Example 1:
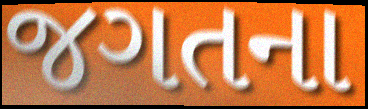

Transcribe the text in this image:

જગતના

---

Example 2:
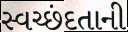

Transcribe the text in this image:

સ્વચ્છંદતાની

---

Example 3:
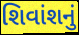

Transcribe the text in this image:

શિવાંશનું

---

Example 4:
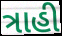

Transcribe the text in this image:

ત્રાહી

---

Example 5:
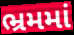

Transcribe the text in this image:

ભ્રમમાં